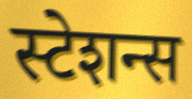
स्टेशन्स